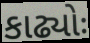
કાઢ્યોઃ